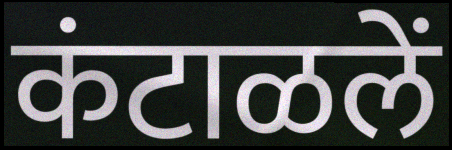
कंटाळलें